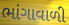
ભાંગાવાળી